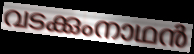
വടക്കുംനാഥൻ